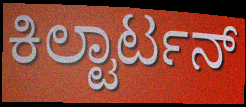
ಕಿಲ್ಟಾರ್ಟನ್